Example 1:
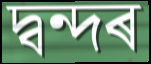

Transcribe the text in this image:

দ্বন্দৰ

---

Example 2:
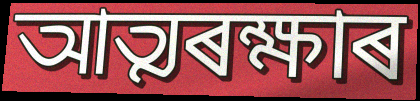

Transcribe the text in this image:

আত্মৰক্ষাৰ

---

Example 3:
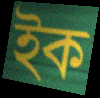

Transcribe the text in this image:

ইক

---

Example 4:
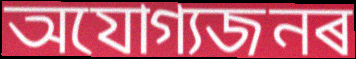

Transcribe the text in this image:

অযোগ্যজনৰ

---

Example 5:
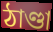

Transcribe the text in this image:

ঠাণ্ডা